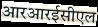
आरआरईसीएल